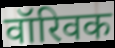
वॉरिवक